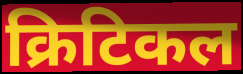
क्रिटिकल